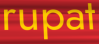
rupat